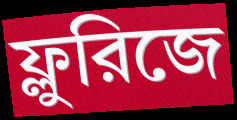
ফ্লুরিজে